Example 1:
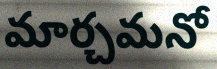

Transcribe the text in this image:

మార్చమనో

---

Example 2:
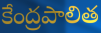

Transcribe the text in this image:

కేంద్రపాలిత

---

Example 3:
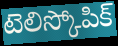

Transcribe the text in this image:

టెలిస్కోపిక్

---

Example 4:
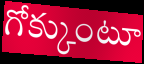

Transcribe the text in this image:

గోక్కుంటూ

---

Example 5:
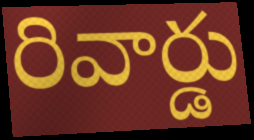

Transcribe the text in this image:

రివార్డు